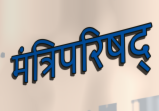
मंत्रिपरिषद्